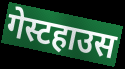
गेस्टहाउस